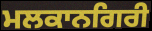
ਮਲਕਾਨਗਿਰੀ